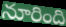
నూరింది